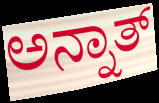
ಅನ್ನಾತ್